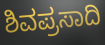
ಶಿವಪ್ರಸಾದಿ